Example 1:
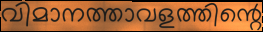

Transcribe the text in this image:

വിമാനത്താവളത്തിന്റെ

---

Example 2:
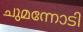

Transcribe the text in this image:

ചുമന്നോടി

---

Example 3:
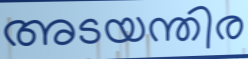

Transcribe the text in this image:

അടയന്തിര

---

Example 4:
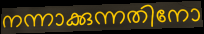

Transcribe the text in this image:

നന്നാക്കുന്നതിനോ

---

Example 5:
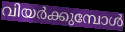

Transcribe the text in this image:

വിയർക്കുമ്പോൾ